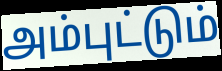
அம்புட்டும்